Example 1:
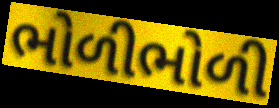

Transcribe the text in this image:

ભોળીભોળી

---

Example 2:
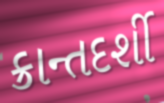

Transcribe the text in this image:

ક્રાન્તદર્શી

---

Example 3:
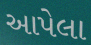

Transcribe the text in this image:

આપેલા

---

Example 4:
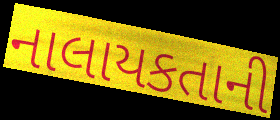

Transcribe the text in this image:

નાલાયકતાની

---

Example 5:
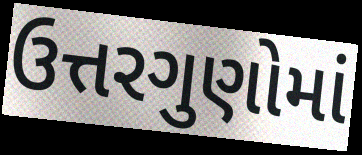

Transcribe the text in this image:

ઉત્તરગુણોમાં